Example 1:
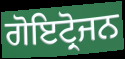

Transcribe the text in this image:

ਗੋਇਟ੍ਰੋਜਨ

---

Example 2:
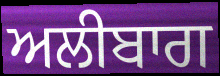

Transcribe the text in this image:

ਅਲੀਬਾਗ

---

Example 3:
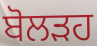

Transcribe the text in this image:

ਬੋਲੜਹ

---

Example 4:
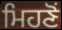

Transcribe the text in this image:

ਮਿਹਣੋਂ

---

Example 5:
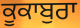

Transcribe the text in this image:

ਕੂਕਾਬੁਰਾ